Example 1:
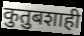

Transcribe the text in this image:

कुतुबशाही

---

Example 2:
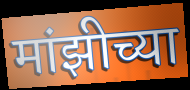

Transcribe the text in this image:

मांझीच्या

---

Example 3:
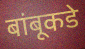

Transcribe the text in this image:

बांबूकडे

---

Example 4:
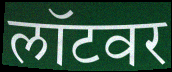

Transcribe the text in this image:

लॉटवर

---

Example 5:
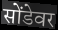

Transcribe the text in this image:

सोंडेवर